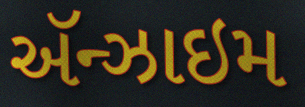
ઍન્ઝાઇમ